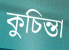
কুচিন্তা